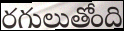
రగులుతోంది